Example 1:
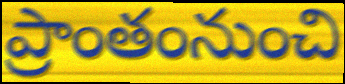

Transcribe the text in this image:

ప్రాంతంనుంచి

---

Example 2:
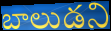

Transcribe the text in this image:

బాలుడని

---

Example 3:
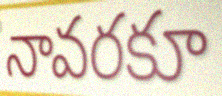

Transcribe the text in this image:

నావరకూ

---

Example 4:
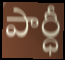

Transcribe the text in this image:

పార్ధీ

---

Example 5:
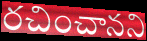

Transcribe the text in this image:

రచించానని